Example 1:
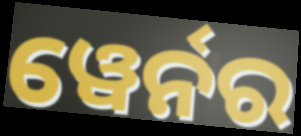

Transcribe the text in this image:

ୱେର୍ନର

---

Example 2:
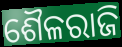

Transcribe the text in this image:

ଶୈଳରାଜି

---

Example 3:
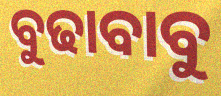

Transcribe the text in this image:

ବୁଢାବାବୁ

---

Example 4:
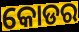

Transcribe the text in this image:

କୋଡର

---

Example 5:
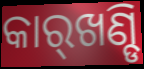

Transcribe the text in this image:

କାର୍‌ଖଣ୍ଡି